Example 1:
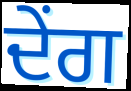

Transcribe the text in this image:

ਦੇਂਗ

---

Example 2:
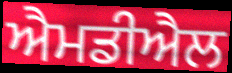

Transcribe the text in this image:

ਐਮਡੀਐਲ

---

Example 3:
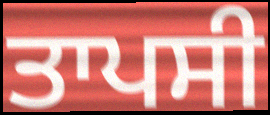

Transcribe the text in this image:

ਤਾਪਸੀ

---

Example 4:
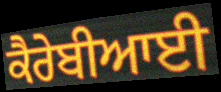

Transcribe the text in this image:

ਕੈਰੇਬੀਆਈ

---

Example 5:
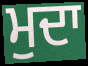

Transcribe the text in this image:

ਮੁਦਾ